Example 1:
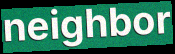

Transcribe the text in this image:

neighbor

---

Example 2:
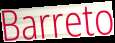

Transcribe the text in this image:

Barreto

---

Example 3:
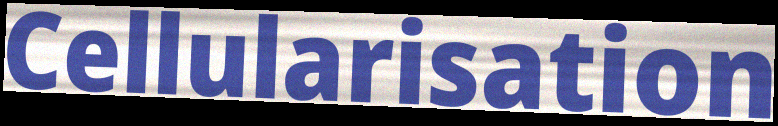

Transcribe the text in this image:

Cellularisation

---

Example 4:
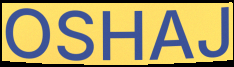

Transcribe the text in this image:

OSHAJ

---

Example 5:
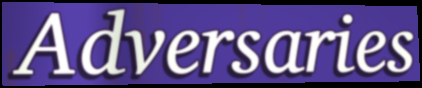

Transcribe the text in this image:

Adversaries